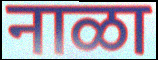
नाळा